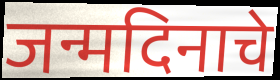
जन्मदिनाचे